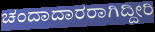
ಚಂದಾದಾರರಾಗಿದ್ದೀರಿ